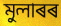
মুলাৰৰ